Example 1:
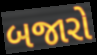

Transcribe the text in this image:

બજારો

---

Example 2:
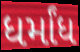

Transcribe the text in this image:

ધર્માંધ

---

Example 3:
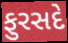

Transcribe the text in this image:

ફુરસદે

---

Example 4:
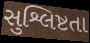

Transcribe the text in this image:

સુશ્લિષ્ટતા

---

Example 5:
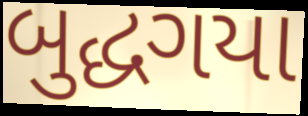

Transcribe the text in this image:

બુદ્ધગયા